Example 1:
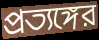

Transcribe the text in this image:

প্রত্যঙ্গের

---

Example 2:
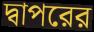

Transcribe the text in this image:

দ্বাপরের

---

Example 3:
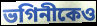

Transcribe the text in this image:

ভগিনীকেও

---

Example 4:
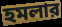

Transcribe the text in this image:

হমলার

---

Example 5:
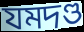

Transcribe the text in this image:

যমদণ্ড